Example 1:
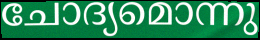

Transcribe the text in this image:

ചോദ്യമൊന്നു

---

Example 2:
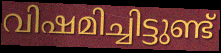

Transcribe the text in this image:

വിഷമിച്ചിട്ടുണ്ട്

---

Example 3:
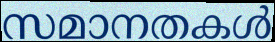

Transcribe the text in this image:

സമാനതകൾ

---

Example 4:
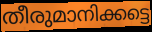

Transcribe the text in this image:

തീരുമാനിക്കട്ടെ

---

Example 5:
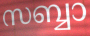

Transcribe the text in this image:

സബ്ബാ